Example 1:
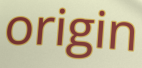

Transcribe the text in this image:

origin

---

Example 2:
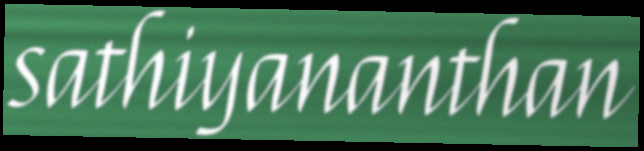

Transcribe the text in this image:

sathiyananthan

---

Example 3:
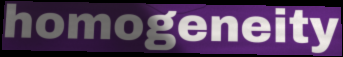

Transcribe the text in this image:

homogeneity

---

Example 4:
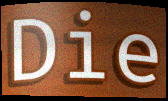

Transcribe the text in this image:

Die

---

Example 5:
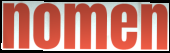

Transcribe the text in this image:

nomen